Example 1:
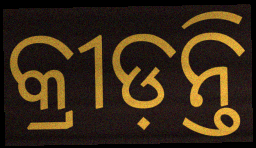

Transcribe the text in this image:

କ୍ରୀଡ଼ନ୍ତି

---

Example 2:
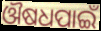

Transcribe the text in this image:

ଔଷଧପାଇଁ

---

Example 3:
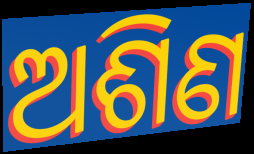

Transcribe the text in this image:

ଅଶିଣ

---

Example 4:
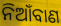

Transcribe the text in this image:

ନିଆଁବାଣ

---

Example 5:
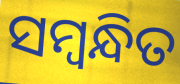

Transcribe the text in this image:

ସମ୍ଵନ୍ଧିତ